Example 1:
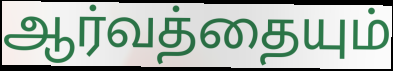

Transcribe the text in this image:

ஆர்வத்தையும்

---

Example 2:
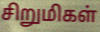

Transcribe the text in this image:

சிறுமிகள்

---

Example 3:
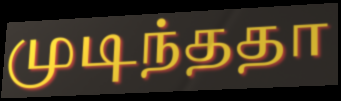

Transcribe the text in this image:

முடிந்ததா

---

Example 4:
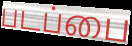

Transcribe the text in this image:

படப்பை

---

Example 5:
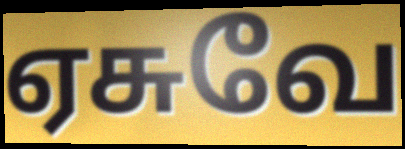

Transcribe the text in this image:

ஏசுவே